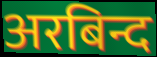
अरबिन्द